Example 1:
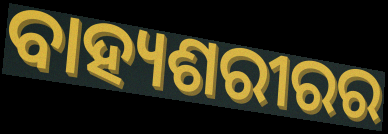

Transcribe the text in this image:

ବାହ୍ୟଶରୀରର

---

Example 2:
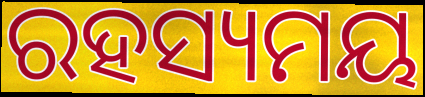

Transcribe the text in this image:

ରହସ୍ୟମୟ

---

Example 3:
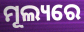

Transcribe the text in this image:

ମୂଲ୍ୟରେ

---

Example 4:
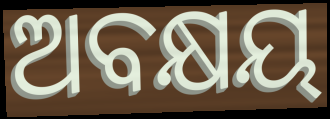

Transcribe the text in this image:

ଅବକ୍ଷୟ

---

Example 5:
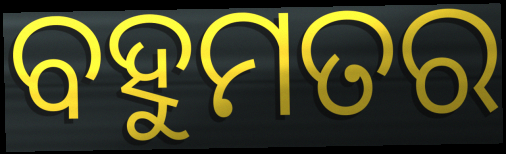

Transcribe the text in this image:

ବହୁମତର